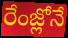
రేంజ్లోనే